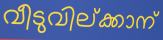
വീടുവില്ക്കാന്